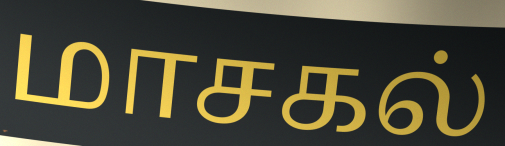
மாசகல்